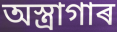
অস্ত্ৰাগাৰ